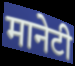
मानेटी